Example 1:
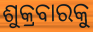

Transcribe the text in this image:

ଶୁକ୍ରବାରକୁ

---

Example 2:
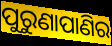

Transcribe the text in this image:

ପୁରୁଣାପାଣିର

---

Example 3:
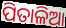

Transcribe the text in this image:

ପିତାଳିଆ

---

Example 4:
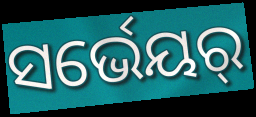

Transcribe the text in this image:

ସର୍ଭେୟର୍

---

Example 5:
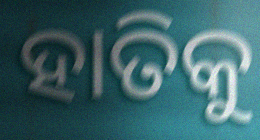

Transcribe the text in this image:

ହାତିକୁ